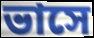
ভাসে